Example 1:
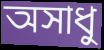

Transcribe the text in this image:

অসাধু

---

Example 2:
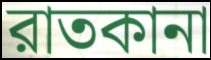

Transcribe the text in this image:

রাতকানা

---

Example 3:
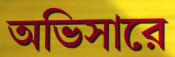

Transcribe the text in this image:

অভিসারে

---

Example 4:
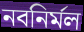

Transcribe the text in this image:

নবনির্মল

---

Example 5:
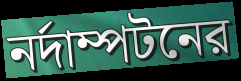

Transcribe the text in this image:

নর্দাম্পটনের